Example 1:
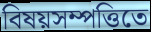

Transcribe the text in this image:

বিষয়সম্পত্তিতে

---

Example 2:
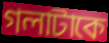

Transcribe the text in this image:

গলাটাকে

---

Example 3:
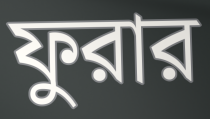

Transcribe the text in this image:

ফুরার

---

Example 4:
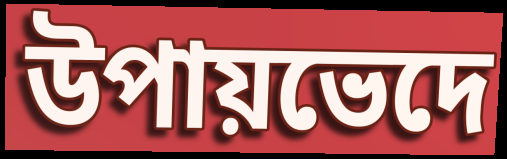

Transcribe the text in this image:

উপায়ভেদে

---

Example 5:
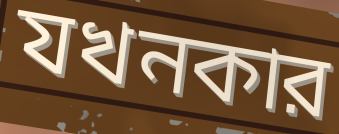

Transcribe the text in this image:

যখনকার